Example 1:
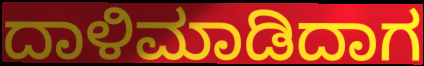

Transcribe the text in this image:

ದಾಳಿಮಾಡಿದಾಗ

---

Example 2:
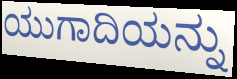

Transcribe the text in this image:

ಯುಗಾದಿಯನ್ನು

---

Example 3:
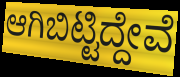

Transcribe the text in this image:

ಆಗಿಬಿಟ್ಟಿದ್ದೇವೆ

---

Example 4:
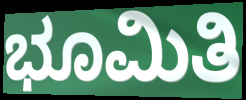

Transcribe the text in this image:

ಭೂಮಿತಿ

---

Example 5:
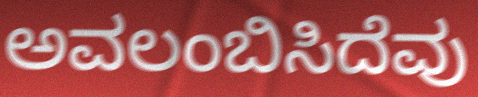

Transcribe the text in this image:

ಅವಲಂಬಿಸಿದೆವು